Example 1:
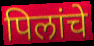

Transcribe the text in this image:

पिलांचे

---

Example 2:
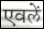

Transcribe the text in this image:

एवलें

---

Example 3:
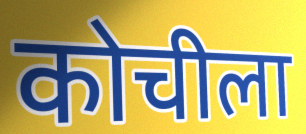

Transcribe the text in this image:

कोचीला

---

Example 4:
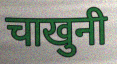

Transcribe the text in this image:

चाखुनी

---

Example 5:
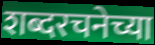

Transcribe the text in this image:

शब्दरचनेच्या